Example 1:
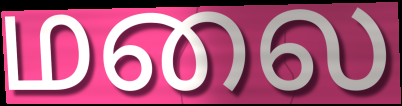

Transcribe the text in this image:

மலை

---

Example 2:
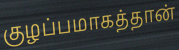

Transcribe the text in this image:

குழப்பமாகத்தான்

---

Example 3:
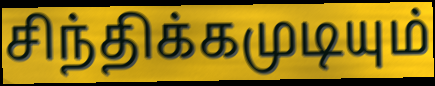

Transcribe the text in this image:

சிந்திக்கமுடியும்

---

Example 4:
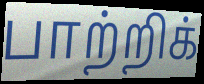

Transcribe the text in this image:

பாற்றிக்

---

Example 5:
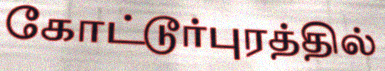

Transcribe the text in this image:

கோட்டூர்புரத்தில்